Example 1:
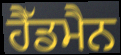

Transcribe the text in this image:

ਹੈੱਡਮੈਨ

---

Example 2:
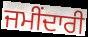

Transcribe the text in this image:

ਜਮੀਂਦਾਰੀ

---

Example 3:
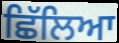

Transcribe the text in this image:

ਛਿੱਲਿਆ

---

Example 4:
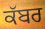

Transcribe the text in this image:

ਕੱਬਰ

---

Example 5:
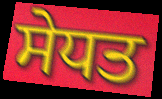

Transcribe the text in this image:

ਸੇਧਤ